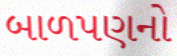
બાળપણનો